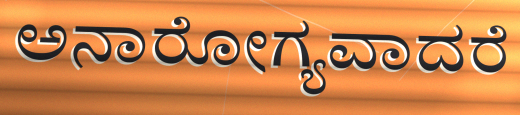
ಅನಾರೋಗ್ಯವಾದರೆ